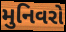
મુનિવરો